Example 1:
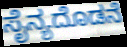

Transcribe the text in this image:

ಸೈನ್ಯದೊಡನೆ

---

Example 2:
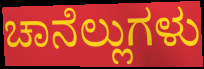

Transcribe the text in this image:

ಚಾನೆಲ್ಲುಗಳು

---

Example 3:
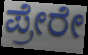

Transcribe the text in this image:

ಪ್ರೇರೇ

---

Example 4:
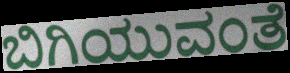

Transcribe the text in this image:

ಬಿಗಿಯುವಂತೆ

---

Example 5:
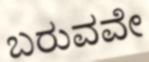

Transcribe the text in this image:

ಬರುವವೇ